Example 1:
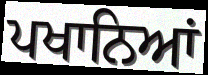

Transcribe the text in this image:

ਪਖਾਨਿਆਂ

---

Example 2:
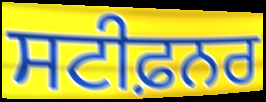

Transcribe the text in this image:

ਸਟੀਫ਼ਨਰ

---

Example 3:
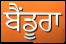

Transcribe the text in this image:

ਬੈਂਡੂਰਾ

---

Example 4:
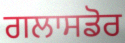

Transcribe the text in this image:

ਗਲਾਸਡੋਰ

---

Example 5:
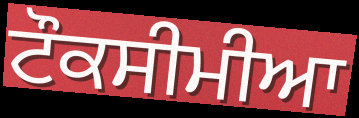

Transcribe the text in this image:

ਟੌਕਸੀਮੀਆ